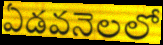
ఏడవనెలలో